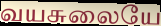
வயசுலையே